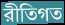
রীতিগত